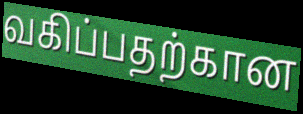
வகிப்பதற்கான